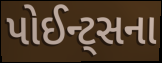
પોઈન્ટ્સના